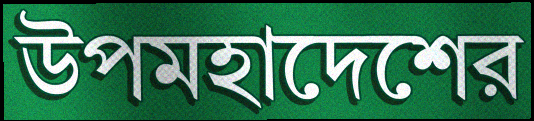
উপমহাদেশের